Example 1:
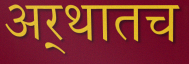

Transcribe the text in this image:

अर्थातच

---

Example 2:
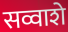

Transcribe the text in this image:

सव्वाशे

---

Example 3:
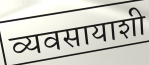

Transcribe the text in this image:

व्यवसायाशी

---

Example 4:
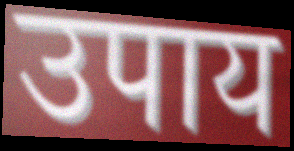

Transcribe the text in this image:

उपाय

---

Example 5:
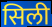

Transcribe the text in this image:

सिली